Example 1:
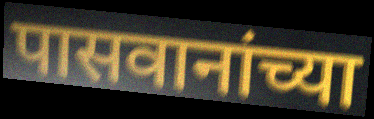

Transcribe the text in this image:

पासवानांच्या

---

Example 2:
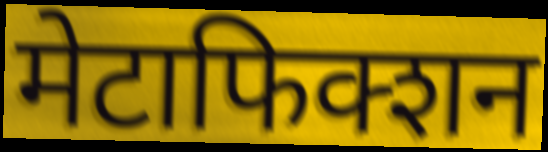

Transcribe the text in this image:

मेटाफिक्शन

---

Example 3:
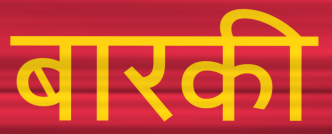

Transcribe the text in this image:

बारकी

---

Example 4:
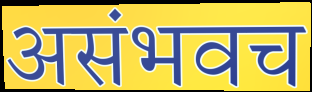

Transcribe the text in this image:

असंभवच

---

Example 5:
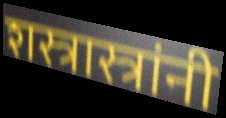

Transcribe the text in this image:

शस्त्रास्त्रांनी